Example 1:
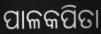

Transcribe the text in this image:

ପାଳକପିତା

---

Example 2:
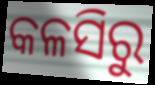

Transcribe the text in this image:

କଳସିରୁ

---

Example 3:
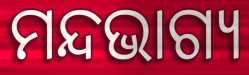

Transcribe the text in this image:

ମନ୍ଦଭାଗ୍ୟ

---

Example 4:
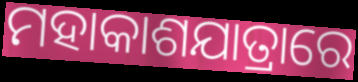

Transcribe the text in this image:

ମହାକାଶଯାତ୍ରାରେ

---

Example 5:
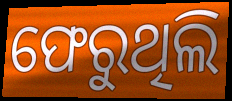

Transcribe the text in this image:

ଫେରୁଥିଲି